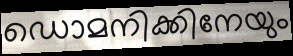
ഡൊമനിക്കിനേയും